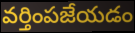
వర్తింపజేయడం